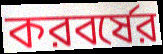
করবর্ষের